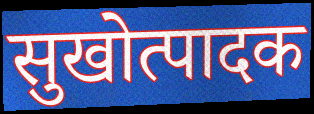
सुखोत्पादक